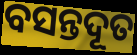
ବସନ୍ତଦୂତ